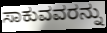
ಸಾಕುವವರನ್ನು